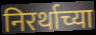
निरर्थाच्या